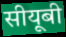
सीयूबी